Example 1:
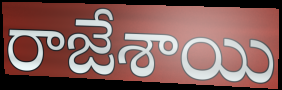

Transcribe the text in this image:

రాజేశాయి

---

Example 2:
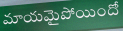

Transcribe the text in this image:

మాయమైపోయిందో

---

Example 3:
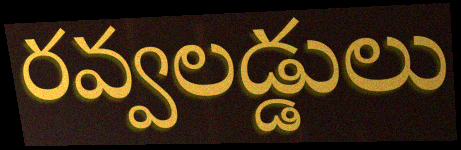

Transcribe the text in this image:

రవ్వలడ్డులు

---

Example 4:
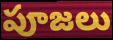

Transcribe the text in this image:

పూజలు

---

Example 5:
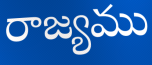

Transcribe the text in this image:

రాజ్యము